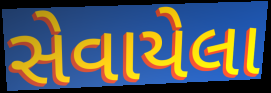
સેવાયેલા